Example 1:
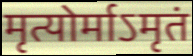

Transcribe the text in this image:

मृत्योर्माऽमृतं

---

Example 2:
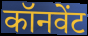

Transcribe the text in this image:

कॉनवेंट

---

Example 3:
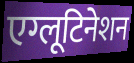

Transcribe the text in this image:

एग्लूटिनेशन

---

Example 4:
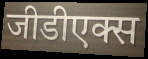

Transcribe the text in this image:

जीडीएक्स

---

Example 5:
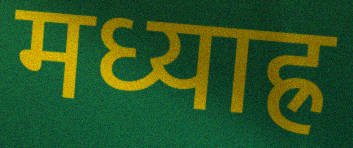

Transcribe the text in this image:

मध्याह्र